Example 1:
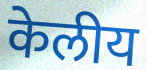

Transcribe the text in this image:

केलीय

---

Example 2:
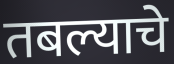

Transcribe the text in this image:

तबल्याचे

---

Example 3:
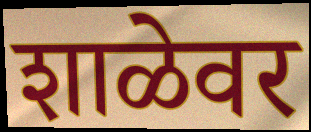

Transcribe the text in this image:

शाळेवर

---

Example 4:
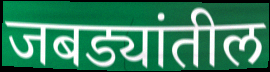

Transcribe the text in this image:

जबड्यांतील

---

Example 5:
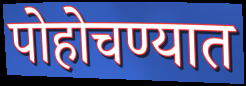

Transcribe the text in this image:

पोहोचण्यात